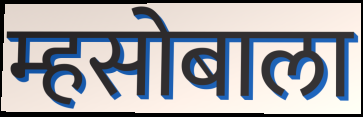
म्हसोबाला